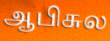
ஆபிசுல